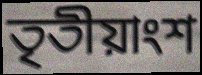
তৃতীয়াংশ